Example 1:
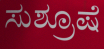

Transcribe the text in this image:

ಸುಶ್ರೂಷೆ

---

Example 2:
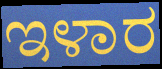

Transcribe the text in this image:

ಇಳಾರ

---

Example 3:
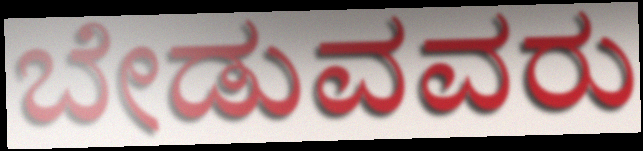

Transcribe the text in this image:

ಬೇಡುವವರು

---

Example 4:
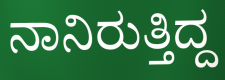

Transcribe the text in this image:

ನಾನಿರುತ್ತಿದ್ದ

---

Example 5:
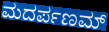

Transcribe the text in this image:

ಮದರ್ಪಣಮ್